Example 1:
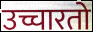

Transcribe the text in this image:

उच्चारतो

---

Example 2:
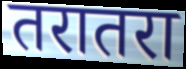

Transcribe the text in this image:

तरातरा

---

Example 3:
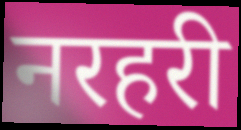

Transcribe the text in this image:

नरहरी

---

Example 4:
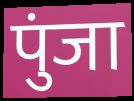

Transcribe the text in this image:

पुंजा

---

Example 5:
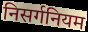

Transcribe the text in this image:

निसर्गनियम